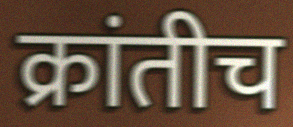
क्रांतीच